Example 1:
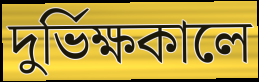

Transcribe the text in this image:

দুর্ভিক্ষকালে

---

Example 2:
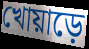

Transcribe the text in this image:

খোয়াড়ে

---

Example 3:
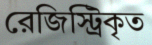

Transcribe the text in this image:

রেজিস্ট্রিকৃত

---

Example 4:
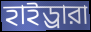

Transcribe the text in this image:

হাইড্রারা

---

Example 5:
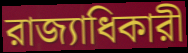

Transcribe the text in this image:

রাজ্যাধিকারী